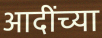
आदींच्या